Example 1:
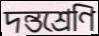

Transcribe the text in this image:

দন্তশ্রেণি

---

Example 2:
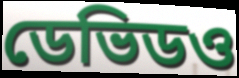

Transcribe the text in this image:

ডেভিডও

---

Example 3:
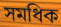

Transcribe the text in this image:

সমধিক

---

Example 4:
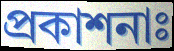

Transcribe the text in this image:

প্রকাশনাঃ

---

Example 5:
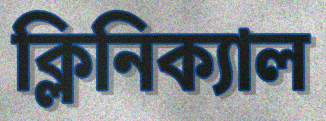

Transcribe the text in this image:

ক্লিনিক্যাল